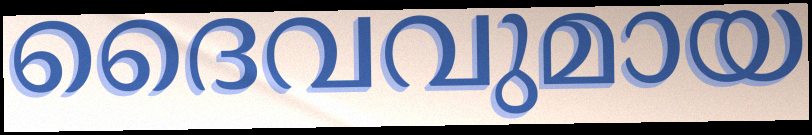
ദൈവവുമായ